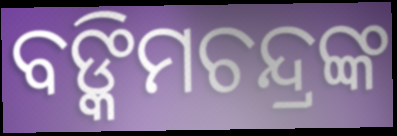
ବଙ୍କିମଚନ୍ଦ୍ରଙ୍କ